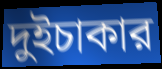
দুইচাকার